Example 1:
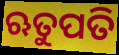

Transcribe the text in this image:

ଋତୁପତି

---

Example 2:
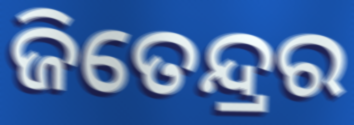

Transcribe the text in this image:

ଜିତେନ୍ଦ୍ରର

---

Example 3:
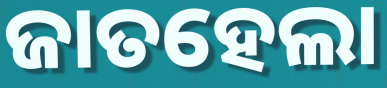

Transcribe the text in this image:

ଜାତହେଲା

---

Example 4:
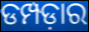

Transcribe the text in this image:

ଡମ୍ପଡ଼ାର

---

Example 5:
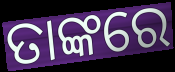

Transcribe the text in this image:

ତାଙ୍କରେ